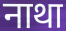
नाथा